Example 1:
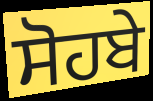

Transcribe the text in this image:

ਸੋਹਬੇ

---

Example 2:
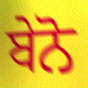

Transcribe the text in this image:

ਬੇਨੋ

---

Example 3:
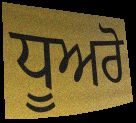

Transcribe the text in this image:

ਧੂਅਰੋ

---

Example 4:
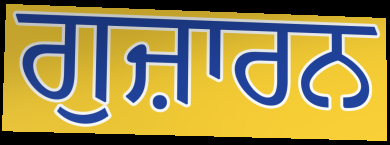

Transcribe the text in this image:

ਗੁਜ਼ਾਰਨ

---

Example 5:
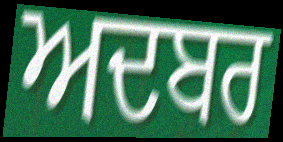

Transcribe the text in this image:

ਅਦਬਰ